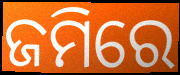
ଜମିରେ